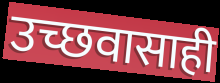
उच्छवासाही